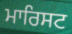
ਮਾਰਿਸਟ